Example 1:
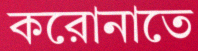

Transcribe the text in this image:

করোনাতে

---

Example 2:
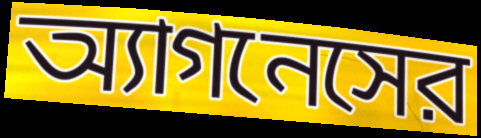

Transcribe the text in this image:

অ্যাগনেসের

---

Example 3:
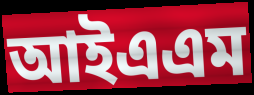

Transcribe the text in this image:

আইএএম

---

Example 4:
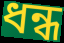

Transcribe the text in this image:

ধন্ধ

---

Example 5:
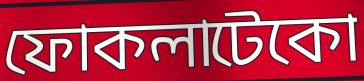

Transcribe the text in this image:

ফোকলাটেকো